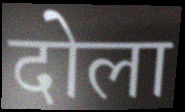
दोला